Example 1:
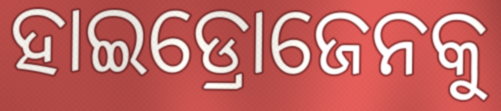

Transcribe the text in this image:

ହାଇଡ୍ରୋଜେନକୁ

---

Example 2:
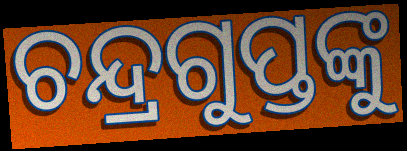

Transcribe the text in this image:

ଚନ୍ଦ୍ରଗୁପ୍ତଙ୍କୁ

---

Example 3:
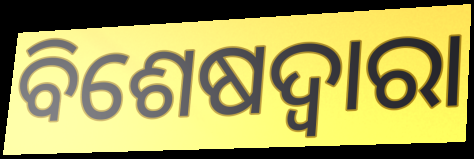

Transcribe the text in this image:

ବିଶେଷଦ୍ଵାରା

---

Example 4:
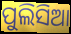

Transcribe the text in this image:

ପୁଲିସିଆ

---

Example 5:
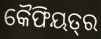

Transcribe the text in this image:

କୈଫିୟତ୍‌ର